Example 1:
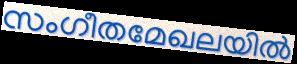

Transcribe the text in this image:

സംഗീതമേഖലയിൽ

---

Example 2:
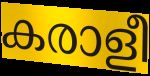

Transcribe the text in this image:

കരാളീ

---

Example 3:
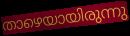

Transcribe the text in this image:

താഴെയായിരുന്നു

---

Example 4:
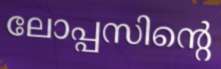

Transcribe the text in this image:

ലോപ്പസിന്റെ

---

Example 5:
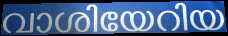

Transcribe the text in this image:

വാശിയേറിയ